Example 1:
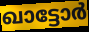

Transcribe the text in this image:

ഖാട്ടോർ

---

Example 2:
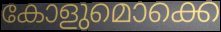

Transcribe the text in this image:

കോളുമൊക്കെ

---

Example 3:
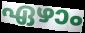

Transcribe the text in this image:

ഏഴാം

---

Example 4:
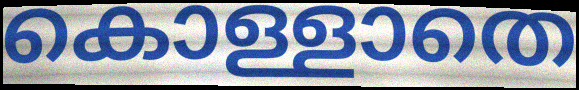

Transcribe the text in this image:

കൊള്ളാതെ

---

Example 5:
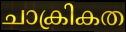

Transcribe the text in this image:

ചാക്രികത